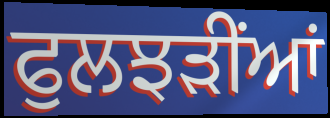
ਫੁਲਝੜੀਂਆਂ